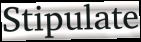
Stipulate